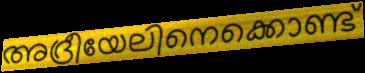
അദ്രീയേലിനെക്കൊണ്ട്